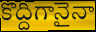
కొద్దిగానైనా